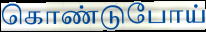
கொண்டுபோய்